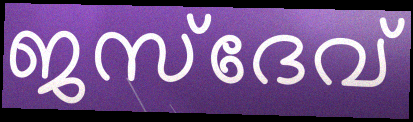
ജസ്ദേവ്